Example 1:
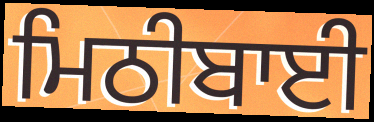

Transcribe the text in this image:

ਮਿਠੀਬਾਈ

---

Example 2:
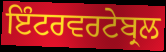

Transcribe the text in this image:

ਇੰਟਰਵਰਟੇਬ੍ਰਲ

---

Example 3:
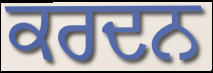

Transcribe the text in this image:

ਕਰਦਨ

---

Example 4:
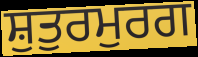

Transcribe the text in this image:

ਸ਼ੁਤੁਰਮੁਰਗ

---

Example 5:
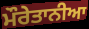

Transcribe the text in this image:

ਮੌਰੇਤਾਨੀਆ